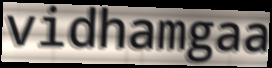
vidhamgaa